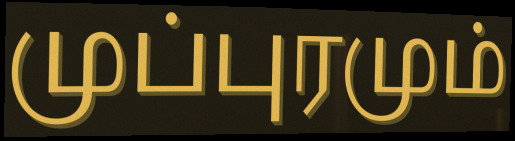
முப்புரமும்